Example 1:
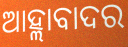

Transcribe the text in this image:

ଆହ୍ଲାବାଦର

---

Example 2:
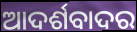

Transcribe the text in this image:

ଆଦର୍ଶବାଦର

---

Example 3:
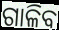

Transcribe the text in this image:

ଗାଳିବ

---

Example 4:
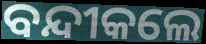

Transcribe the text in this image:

ବନ୍ଦୀକଲେ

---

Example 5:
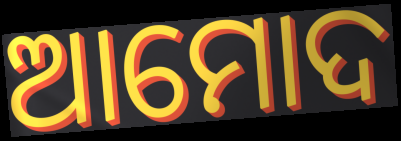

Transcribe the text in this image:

ଆମୋଦ